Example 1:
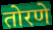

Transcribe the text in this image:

तोरणे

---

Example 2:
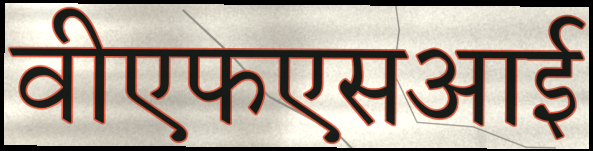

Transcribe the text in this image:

वीएफएसआई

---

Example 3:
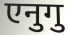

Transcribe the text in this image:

एनुगु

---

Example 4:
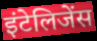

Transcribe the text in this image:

इंटेलिजेंस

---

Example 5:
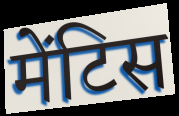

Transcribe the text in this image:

मेंटिस